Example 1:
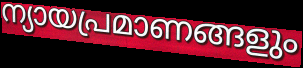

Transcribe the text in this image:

ന്യായപ്രമാണങ്ങളും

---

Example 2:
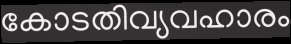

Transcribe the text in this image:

കോടതിവ്യവഹാരം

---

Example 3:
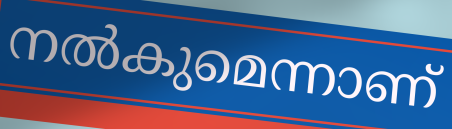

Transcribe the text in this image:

നൽകുമെന്നാണ്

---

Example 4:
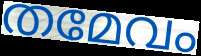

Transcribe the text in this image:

തമേവം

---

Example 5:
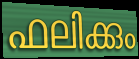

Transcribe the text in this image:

ഫലിക്കും